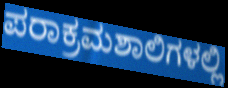
ಪರಾಕ್ರಮಶಾಲಿಗಳಲ್ಲಿ